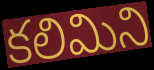
కలిమిని